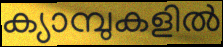
ക്യാമ്പുകളിൽ